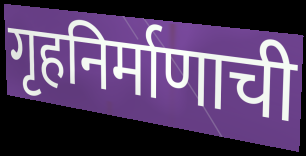
गृहनिर्माणाची